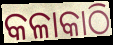
କଳାକାଠି